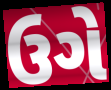
ઉગે